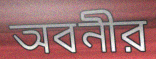
অবনীর